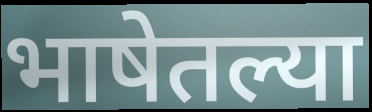
भाषेतल्या